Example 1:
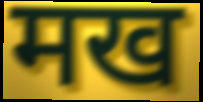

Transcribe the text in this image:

मख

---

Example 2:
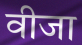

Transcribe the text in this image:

वीजा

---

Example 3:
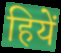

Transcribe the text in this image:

हियें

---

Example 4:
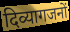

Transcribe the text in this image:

दिव्यागजनों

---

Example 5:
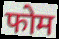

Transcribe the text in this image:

फोम